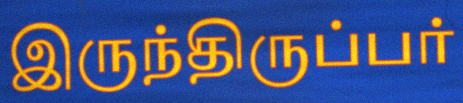
இருந்திருப்பர்